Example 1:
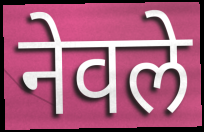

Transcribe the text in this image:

नेवले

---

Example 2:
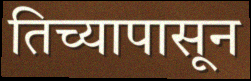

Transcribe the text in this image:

तिच्यापासून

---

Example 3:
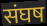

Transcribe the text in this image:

संघष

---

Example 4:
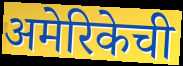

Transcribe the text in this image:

अमेरिकेची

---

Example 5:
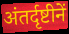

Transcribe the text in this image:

अंतर्दृष्टीनें